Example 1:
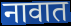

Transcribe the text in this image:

नावात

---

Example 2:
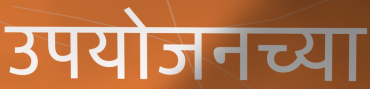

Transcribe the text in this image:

उपयोजनच्या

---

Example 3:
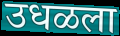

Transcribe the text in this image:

उधळला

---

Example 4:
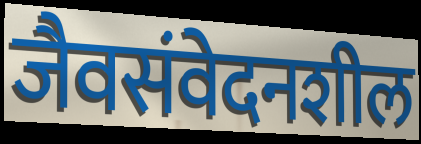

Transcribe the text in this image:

जैवसंवेदनशील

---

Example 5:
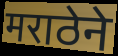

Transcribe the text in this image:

मराठेने